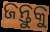
ଜନ୍ତୁକୁ